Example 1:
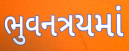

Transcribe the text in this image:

ભુવનત્રયમાં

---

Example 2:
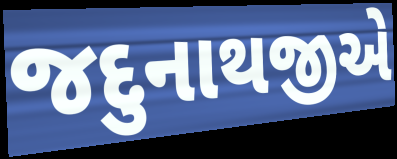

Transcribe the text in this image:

જદુનાથજીએ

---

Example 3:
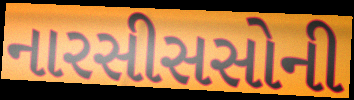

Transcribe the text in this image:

નારસીસસોની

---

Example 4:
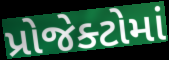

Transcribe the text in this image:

પ્રોજેક્ટોમાં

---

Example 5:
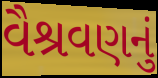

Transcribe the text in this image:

વૈશ્રવણનું